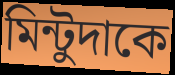
মিন্টুদাকে